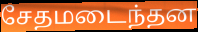
சேதமடைந்தன